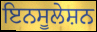
ਇਨਸੂਲੇਸ਼ਨ